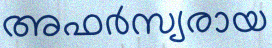
അഫർസ്യരായ